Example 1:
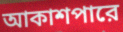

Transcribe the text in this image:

আকাশপারে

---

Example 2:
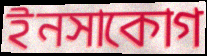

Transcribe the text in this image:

ইনসাকোগ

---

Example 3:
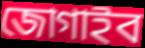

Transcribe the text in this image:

জোগাইব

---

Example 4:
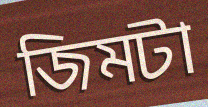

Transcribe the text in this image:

জিমটা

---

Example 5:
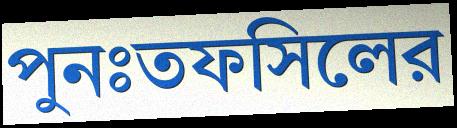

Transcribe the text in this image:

পুনঃতফসিলের